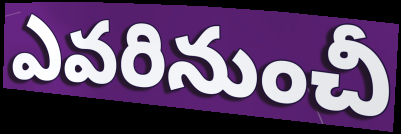
ఎవరినుంచీ